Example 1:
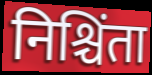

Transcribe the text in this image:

निश्चिंता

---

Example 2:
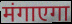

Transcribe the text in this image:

मंगाएगा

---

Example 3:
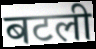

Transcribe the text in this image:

बटली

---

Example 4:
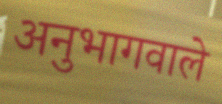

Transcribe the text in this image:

अनुभागवाले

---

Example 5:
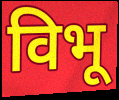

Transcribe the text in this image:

विभू